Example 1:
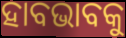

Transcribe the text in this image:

ହାବଭାବକୁ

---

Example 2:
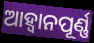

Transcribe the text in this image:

ଆହ୍ବାନପୂର୍ଣ୍ଣ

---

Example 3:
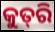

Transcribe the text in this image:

କୁତ୍‌ରି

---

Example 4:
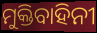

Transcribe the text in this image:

ମୁକ୍ତିବାହିନୀ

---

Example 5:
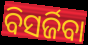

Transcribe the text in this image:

ବିସର୍ଜିବା